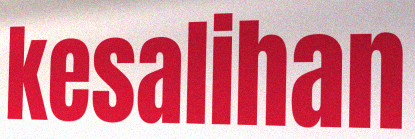
kesalihan